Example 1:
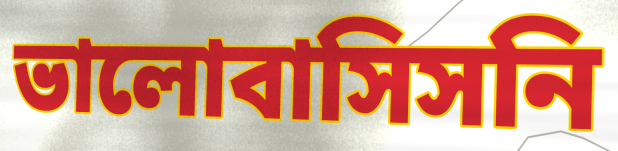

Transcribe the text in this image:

ভালোবাসিসনি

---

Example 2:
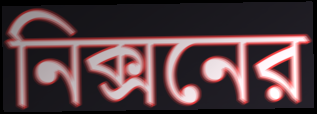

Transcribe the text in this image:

নিক্সনের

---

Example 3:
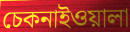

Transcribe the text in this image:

চেকনাইওয়ালা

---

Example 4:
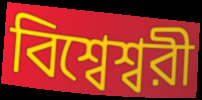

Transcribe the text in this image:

বিশ্বেশ্বরী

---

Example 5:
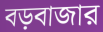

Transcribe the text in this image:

বড়বাজার